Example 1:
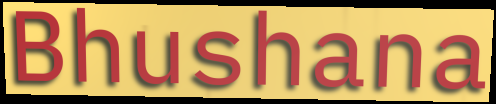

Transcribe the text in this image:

Bhushana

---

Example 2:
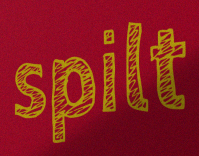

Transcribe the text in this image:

spilt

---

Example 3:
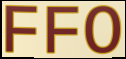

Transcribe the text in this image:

FFO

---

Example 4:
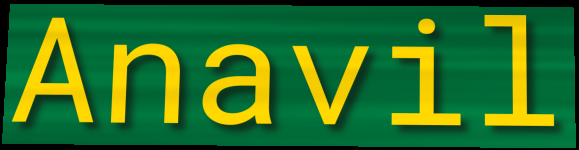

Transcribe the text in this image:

Anavil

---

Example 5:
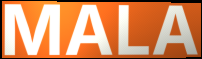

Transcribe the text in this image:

MALA